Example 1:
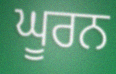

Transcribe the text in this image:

ਘੂਰਨ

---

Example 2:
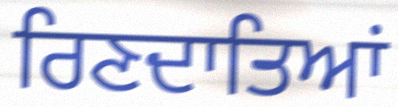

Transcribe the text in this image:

ਰਿਣਦਾਤਿਆਂ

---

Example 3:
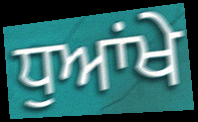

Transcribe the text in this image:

ਧੁਆਂਖੇ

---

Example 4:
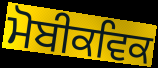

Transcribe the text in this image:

ਮੋਬੀਕਵਿਕ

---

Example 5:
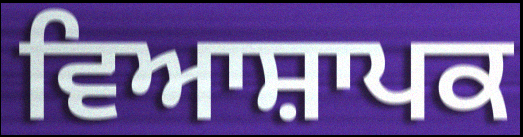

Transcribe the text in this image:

ਵਿਆਸ਼ਾਪਕ